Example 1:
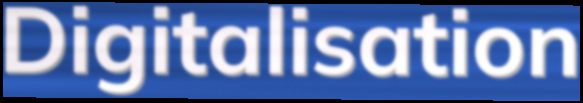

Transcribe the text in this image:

Digitalisation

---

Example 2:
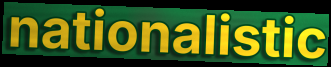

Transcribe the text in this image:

nationalistic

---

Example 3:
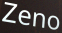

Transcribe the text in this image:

Zeno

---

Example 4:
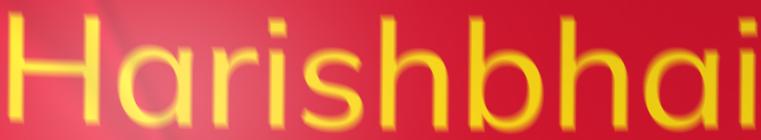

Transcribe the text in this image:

Harishbhai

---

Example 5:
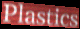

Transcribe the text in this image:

Plastics